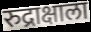
रुद्राक्षाला